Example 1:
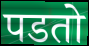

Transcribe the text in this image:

पडतो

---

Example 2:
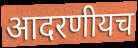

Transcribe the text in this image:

आदरणीयच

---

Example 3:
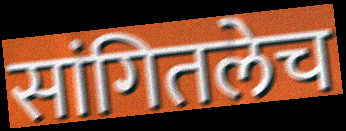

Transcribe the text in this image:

सांगितलेच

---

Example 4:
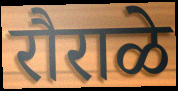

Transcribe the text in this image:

रौराळे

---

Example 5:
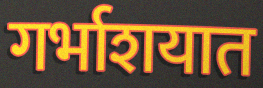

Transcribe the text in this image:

गर्भाशयात